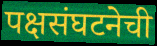
पक्षसंघटनेची